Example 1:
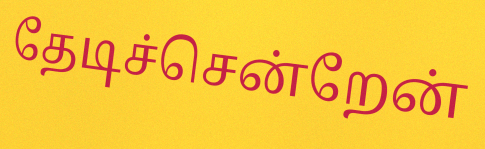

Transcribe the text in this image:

தேடிச்சென்றேன்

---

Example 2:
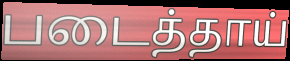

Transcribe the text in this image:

படைத்தாய்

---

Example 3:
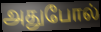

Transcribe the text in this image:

அதுபோல்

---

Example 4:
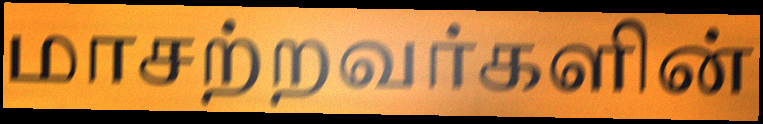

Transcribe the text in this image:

மாசற்றவர்களின்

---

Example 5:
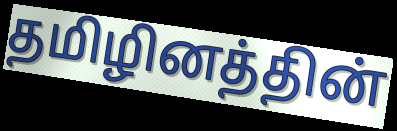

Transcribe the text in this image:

தமிழினத்தின்